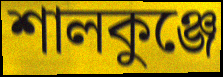
শালকুঞ্জে